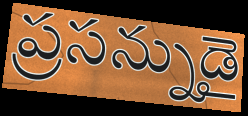
ప్రసన్నుడై